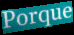
Porque